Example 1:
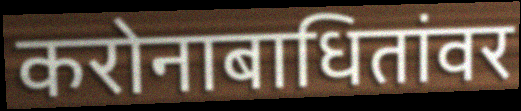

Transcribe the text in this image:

करोनाबाधितांवर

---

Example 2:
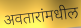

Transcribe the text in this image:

अवतारांमधील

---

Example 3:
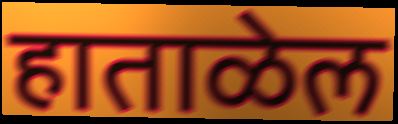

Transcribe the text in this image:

हाताळेल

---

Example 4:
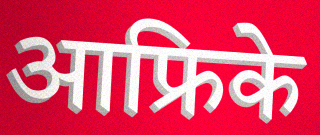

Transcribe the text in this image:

आफ्रिके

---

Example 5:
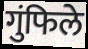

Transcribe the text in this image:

गुंफिले